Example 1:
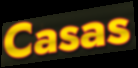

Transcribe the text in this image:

Casas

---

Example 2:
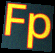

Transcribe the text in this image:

Fp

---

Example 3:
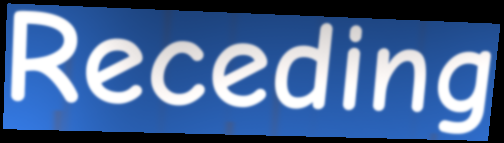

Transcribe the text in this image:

Receding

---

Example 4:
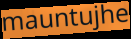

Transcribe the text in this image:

mauntujhe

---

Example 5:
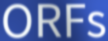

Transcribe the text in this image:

ORFs